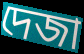
দেজা